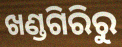
ଖଣ୍ଡଗିରିରୁ